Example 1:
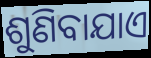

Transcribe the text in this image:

ଶୁଣିବାଯାଏ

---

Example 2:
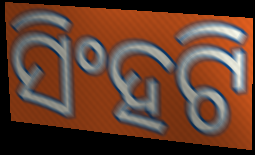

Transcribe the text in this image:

ସିଂହଟି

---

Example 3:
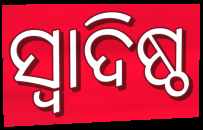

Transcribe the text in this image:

ସ୍ୱାଦିଷ୍ଠ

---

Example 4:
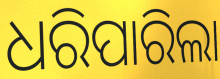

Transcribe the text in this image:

ଧରିପାରିଲା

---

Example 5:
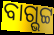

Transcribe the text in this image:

ବାଗ୍ଭଟ୍ଟ